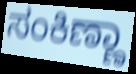
ಸಂಕಿಣ್ಣಾ